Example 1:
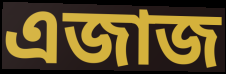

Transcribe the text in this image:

এজাজ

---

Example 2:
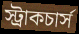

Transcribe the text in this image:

স্ট্রাকচার্স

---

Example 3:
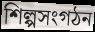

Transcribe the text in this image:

শিল্পসংগঠন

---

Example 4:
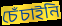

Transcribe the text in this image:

চেঁচাইনি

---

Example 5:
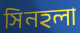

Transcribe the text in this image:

সিনহলা